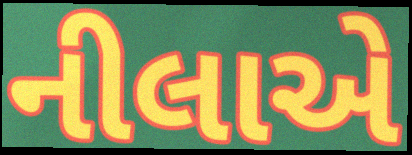
નીલાએ